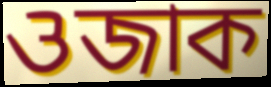
ওজাক